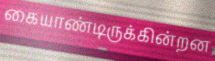
கையாண்டிருக்கின்றன